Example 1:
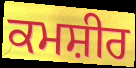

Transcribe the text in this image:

ਕਮਸ਼ੀਰ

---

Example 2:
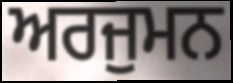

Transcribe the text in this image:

ਅਰਜੁਮਨ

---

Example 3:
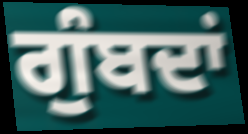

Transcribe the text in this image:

ਗੁੰਬਦਾਂ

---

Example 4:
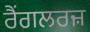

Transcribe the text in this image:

ਰੈਂਗਲਰਜ਼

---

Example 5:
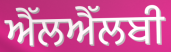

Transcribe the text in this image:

ਐੱਲਐੱਲਬੀ